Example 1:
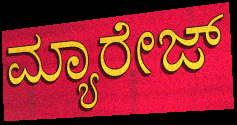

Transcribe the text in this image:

ಮ್ಯಾರೇಜ್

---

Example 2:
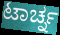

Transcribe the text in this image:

ಟಾರ್ಚ್ನ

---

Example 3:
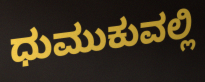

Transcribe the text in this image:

ಧುಮುಕುವಲ್ಲಿ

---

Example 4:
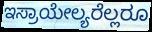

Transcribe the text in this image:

ಇಸ್ರಾಯೇಲ್ಯರೆಲ್ಲರೂ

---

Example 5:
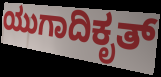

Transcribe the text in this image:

ಯುಗಾದಿಕೃತ್